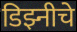
डिझ्नीचे